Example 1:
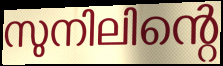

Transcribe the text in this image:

സുനിലിന്റെ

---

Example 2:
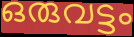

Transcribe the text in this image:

ഒരുവട്ടം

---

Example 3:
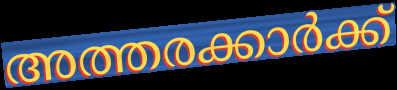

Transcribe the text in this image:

അത്തരക്കാർക്ക്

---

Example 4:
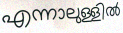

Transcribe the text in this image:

എന്നാലുള്ളിൽ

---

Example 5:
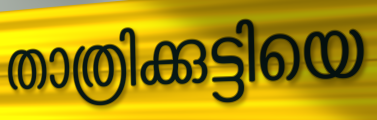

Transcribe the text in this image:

താത്രിക്കുട്ടിയെ